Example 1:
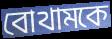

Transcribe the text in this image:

বোথামকে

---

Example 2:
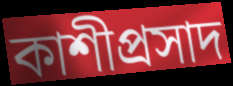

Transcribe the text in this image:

কাশীপ্রসাদ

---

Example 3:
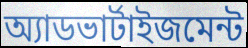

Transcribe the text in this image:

অ্যাডভার্টাইজমেন্ট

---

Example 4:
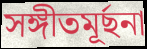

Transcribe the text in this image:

সঙ্গীতমূর্ছনা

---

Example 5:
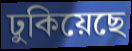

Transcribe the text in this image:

ঢুকিয়েছে